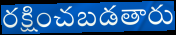
రక్షించబడతారు